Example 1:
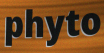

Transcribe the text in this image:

phyto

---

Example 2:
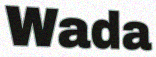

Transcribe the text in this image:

Wada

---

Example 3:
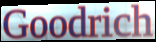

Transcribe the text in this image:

Goodrich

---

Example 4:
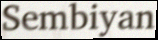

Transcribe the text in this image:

Sembiyan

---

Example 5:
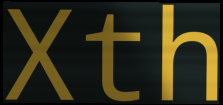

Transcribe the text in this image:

Xth